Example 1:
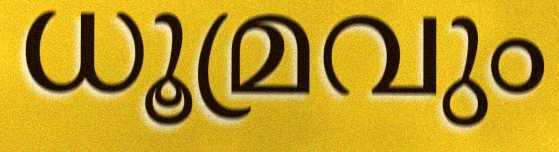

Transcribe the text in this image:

ധൂമ്രവും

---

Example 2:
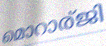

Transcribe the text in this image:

മൊറാര്ജി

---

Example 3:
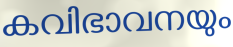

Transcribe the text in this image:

കവിഭാവനയും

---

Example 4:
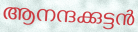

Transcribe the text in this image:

ആനന്ദക്കുട്ടൻ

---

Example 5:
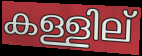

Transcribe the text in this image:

കള്ളില്